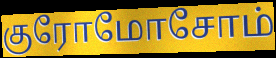
குரோமோசோம்